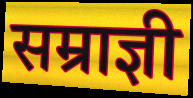
सम्राज्ञी